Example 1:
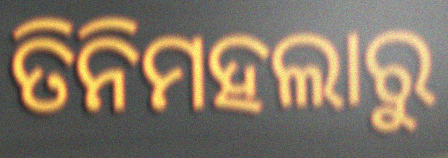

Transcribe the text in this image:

ତିନିମହଲାରୁ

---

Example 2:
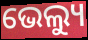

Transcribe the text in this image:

ଭେଲ୍ୟୁ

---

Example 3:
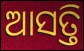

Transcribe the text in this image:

ଆସତ୍ତି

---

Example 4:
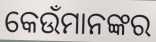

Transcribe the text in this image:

କେଉଁମାନଙ୍କର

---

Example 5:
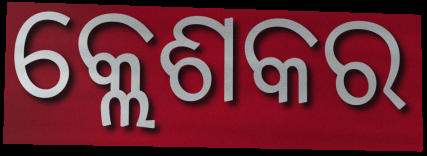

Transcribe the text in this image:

କ୍ଲେଶକର